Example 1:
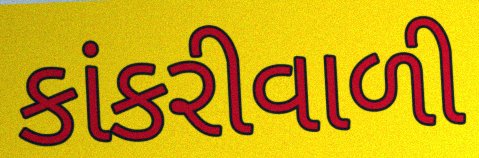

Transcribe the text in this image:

કાંકરીવાળી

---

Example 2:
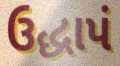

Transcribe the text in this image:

ઉદ્ધાપં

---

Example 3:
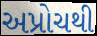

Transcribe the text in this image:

અપ્રોચથી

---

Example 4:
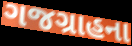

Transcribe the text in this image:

ગજગ્રાહના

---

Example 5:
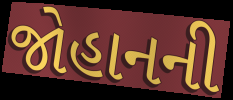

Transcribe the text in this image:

જોહાનની